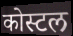
कोस्टल